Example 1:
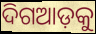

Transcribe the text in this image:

ଦିଗଆଡ଼କୁ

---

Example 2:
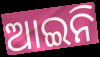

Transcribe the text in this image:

ଆଇନି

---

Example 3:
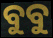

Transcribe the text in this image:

ବୁବୁ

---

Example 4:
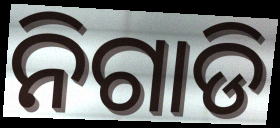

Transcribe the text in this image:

ନିଗାଡି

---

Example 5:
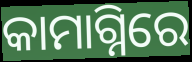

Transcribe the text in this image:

କାମାଗ୍ନିରେ